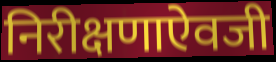
निरीक्षणाऐवजी